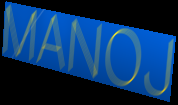
MANOJ